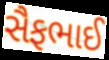
સૈફભાઈ